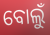
ବୋଲୁଁ